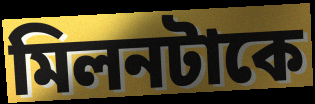
মিলনটাকে